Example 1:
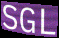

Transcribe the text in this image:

SGL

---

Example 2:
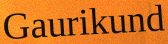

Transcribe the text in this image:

Gaurikund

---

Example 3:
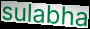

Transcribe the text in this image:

sulabha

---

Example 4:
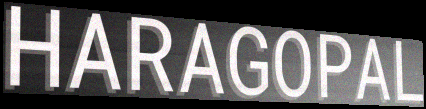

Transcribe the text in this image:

HARAGOPAL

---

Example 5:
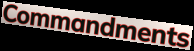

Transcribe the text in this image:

Commandments